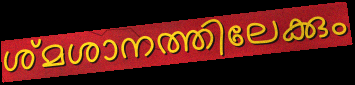
ശ്മശാനത്തിലേക്കും